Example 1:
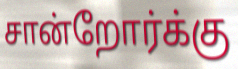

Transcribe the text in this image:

சான்றோர்க்கு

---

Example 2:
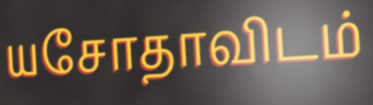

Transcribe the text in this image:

யசோதாவிடம்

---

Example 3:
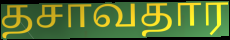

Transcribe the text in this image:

தசாவதார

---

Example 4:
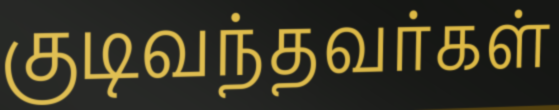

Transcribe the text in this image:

குடிவந்தவர்கள்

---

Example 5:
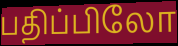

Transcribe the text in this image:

பதிப்பிலோ